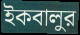
ইকবালুর